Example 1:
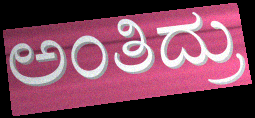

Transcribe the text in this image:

ಅಂತಿದ್ರು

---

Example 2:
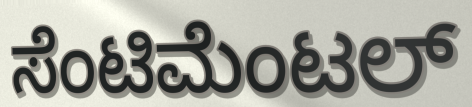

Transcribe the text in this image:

ಸೆಂಟಿಮೆಂಟಲ್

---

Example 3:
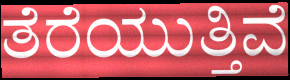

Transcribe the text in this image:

ತೆರೆಯುತ್ತಿವೆ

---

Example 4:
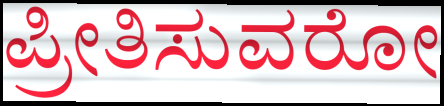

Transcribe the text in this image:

ಪ್ರೀತಿಸುವರೋ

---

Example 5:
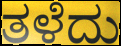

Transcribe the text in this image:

ತಳೆದು